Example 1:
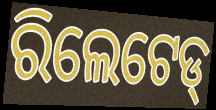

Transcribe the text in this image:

ରିଲେଟେଡ୍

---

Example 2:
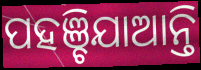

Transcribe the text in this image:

ପହଞ୍ଚିଯାଆନ୍ତି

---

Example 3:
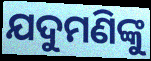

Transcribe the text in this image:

ଯଦୁମଣିଙ୍କୁ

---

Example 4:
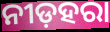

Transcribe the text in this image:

ନୀଡ଼ହରା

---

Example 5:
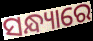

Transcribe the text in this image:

ସନ୍ଧ୍ୟାରେ